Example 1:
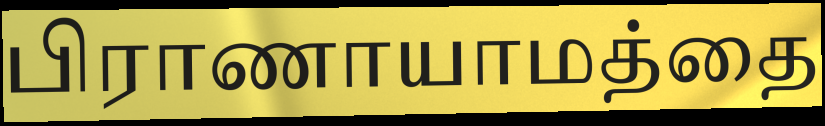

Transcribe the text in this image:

பிராணாயாமத்தை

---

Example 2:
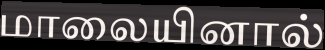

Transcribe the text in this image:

மாலையினால்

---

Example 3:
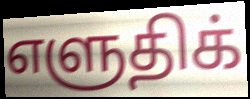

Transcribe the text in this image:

எளுதிக்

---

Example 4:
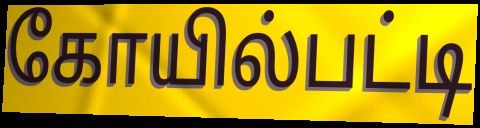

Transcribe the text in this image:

கோயில்பட்டி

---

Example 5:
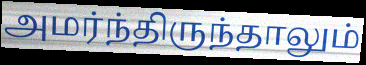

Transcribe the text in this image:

அமர்ந்திருந்தாலும்